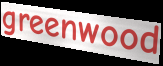
greenwood